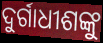
ଦୁର୍ଗାଧୀଶଙ୍କୁ